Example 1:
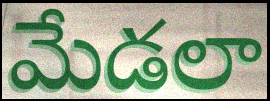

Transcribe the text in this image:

మేడలా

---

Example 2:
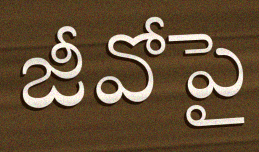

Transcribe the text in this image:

జీవోపై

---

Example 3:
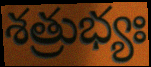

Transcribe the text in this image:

శత్రుభ్యః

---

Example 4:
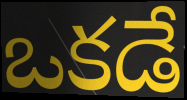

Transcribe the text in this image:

ఒకడే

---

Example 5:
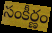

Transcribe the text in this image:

సంకీర్ణం